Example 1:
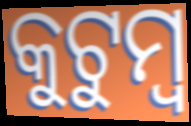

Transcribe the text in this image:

କୁଟୁମ୍ଵ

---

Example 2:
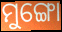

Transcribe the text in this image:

ମୁଙ୍ଗୋ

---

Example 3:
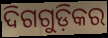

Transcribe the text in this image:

ଦିଗଗୁଡ଼ିକର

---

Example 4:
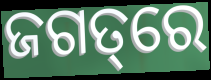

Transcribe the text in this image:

ଜଗତ୍‌ରେ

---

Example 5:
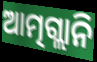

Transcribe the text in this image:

ଆତ୍ମଗ୍ଲାନି